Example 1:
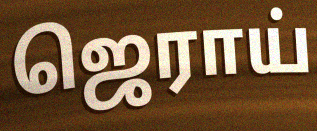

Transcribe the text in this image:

ஜெராய்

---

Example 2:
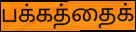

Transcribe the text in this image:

பக்கத்தைக்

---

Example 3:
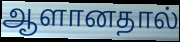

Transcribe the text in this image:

ஆளானதால்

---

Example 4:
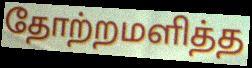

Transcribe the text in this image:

தோற்றமளித்த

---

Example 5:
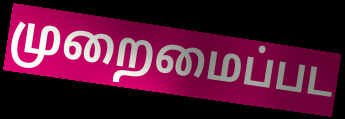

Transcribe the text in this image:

முறைமைப்பட